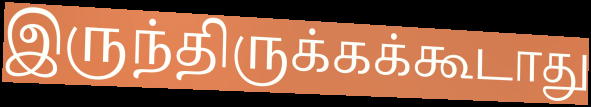
இருந்திருக்கக்கூடாது